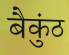
बैकुंठ